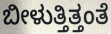
ಬೀಳುತ್ತಿತ್ತಂತೆ